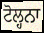
ਟੋਲ੍ਹਨਾ